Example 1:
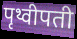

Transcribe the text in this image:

पृथ्वीपती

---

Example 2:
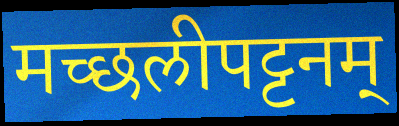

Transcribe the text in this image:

मच्छलीपट्टनम्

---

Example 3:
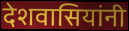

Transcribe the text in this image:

देशवासियांनी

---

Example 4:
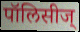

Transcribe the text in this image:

पॉलिसीज्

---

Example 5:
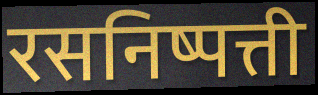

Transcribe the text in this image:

रसनिष्पत्ती